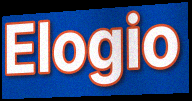
Elogio